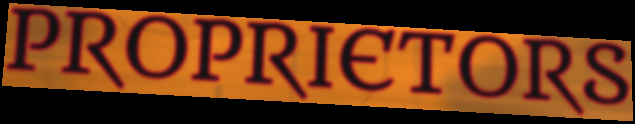
PROPRIETORS